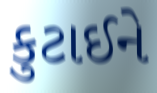
કુટાઈને